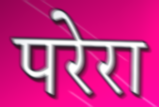
परेरा